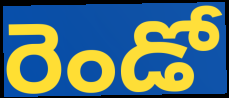
రెండో